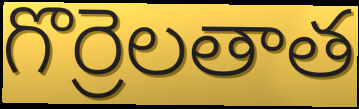
గొర్రెలతాత